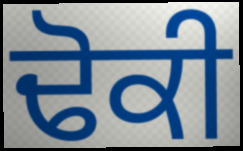
ਢੋਕੀ